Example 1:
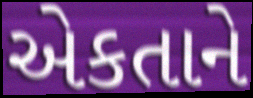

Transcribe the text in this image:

એકતાને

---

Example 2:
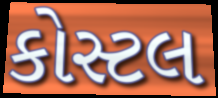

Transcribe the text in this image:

કોસ્ટલ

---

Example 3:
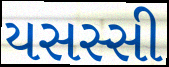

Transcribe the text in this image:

યસસ્સી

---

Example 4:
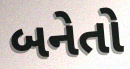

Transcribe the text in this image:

બનેતો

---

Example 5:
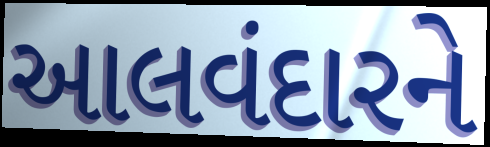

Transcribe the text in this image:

આલવંદારને